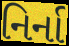
નિર્ના